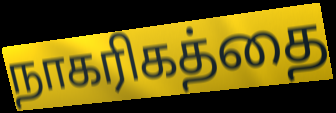
நாகரிகத்தை